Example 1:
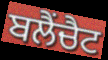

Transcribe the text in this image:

ਬਲੈਂਚੈਟ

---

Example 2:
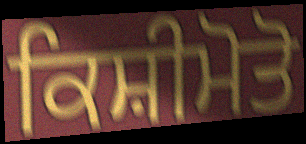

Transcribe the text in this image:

ਕਿਸ਼ੀਮੋਤੋ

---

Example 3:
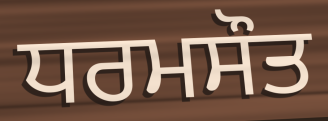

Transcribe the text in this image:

ਧਰਮਸੌਤ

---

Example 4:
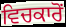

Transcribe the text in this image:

ਵਿਚਕਾਰੋਂ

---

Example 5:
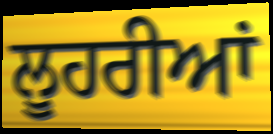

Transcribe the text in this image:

ਲੂਹਰੀਆਂ